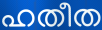
ഹതീത